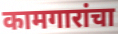
कामगारांचा